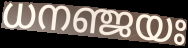
ധനഞ്ജയഃ